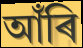
আঁৰি